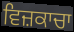
ਵਿਜ਼ਕਾਚਾ